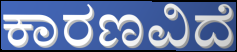
ಕಾರಣವಿದೆ